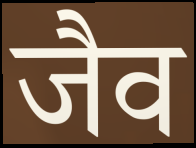
जैव